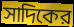
সাদিকের